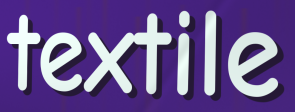
textile